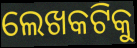
ଲେଖକଟିକୁ